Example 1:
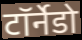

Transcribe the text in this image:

टॉर्नेडो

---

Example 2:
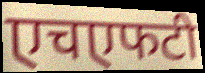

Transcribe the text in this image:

एचएफटी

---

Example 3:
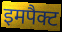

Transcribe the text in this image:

इमपैक्ट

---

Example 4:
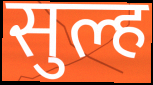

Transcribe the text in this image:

सुल्ह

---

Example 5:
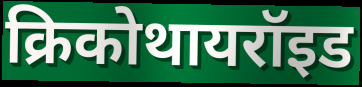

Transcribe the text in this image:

क्रिकोथायरॉइड